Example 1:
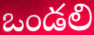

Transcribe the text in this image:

ఒండలి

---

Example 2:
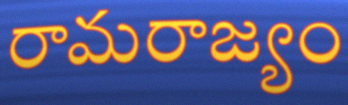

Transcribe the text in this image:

రామరాజ్యం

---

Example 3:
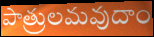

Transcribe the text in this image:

పాత్రులమవుదాం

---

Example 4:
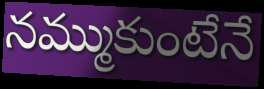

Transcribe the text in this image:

నమ్ముకుంటేనే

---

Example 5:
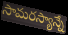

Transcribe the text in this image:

సామరస్యాన్నే